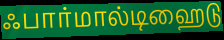
ஃபார்மால்டிஹைடு